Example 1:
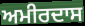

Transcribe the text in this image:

ਅਮੀਰਦਾਸ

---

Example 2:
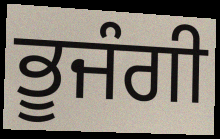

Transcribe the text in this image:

ਭੂਜੰਗੀ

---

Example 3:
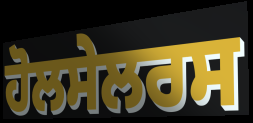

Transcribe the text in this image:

ਹੋਲਸੇਲਰਸ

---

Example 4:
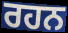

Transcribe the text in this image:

ਰਹਨ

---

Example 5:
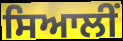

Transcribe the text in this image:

ਸਿਆਲੀਂ